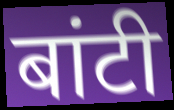
बांटी